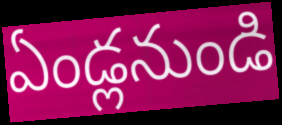
ఏండ్లనుండి